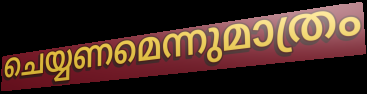
ചെയ്യണമെന്നുമാത്രം